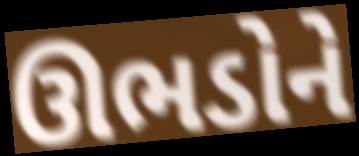
ઊભડોને